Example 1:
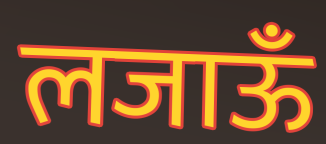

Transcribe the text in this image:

लजाऊँ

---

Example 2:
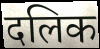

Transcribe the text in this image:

दलिक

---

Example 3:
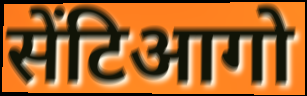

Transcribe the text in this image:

सेंटिआगो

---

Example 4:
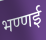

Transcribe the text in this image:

भण्णई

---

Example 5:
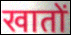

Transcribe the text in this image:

खातों